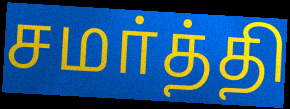
சமர்த்தி